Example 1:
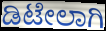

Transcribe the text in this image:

ಡಿಟೇಲಾಗಿ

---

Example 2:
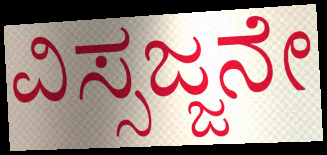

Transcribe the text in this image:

ವಿಸ್ಸಜ್ಜನೇ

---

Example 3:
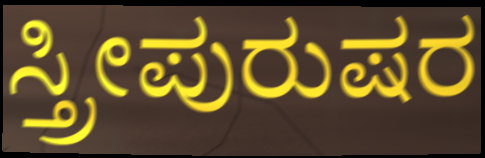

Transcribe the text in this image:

ಸ್ತ್ರೀಪುರುಷರ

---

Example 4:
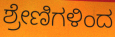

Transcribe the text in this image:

ಶ್ರೇಣಿಗಳಿಂದ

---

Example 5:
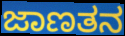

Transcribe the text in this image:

ಜಾಣತನ